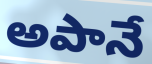
అపానే